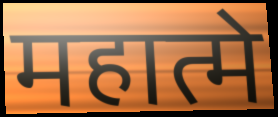
महात्मे